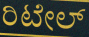
ರಿಟೇಲ್